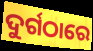
ଦୁର୍ଗଠାରେ